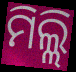
ମିଲ୍ଲି